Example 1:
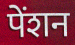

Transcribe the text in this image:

पेंशन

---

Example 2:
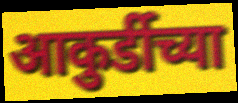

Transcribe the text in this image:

आकुर्डीच्या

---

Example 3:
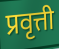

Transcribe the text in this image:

प्रवृत्ती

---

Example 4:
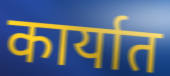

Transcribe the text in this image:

कार्यात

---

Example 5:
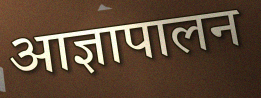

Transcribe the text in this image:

आज्ञापालन